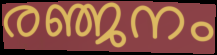
രഞ്ജനം